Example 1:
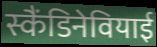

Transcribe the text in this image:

स्कैंडिनेवियाई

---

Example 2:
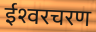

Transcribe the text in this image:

ईश्वरचरण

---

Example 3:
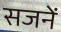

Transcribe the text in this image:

सजनें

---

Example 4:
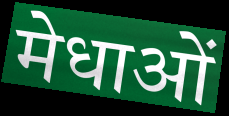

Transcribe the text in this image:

मेधाओं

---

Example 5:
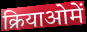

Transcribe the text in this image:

क्रियाओमें